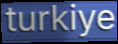
turkiye